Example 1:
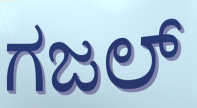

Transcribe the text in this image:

ಗಜಲ್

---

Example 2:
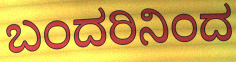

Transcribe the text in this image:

ಬಂದರಿನಿಂದ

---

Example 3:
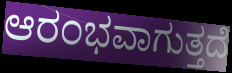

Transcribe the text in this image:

ಆರಂಭವಾಗುತ್ತದೆ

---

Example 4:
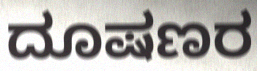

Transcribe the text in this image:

ದೂಷಣರ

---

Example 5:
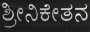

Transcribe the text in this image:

ಶ್ರೀನಿಕೇತನ